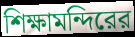
শিক্ষামন্দিরের